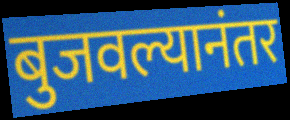
बुजवल्यानंतर